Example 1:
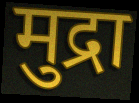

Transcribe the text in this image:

मुद्रा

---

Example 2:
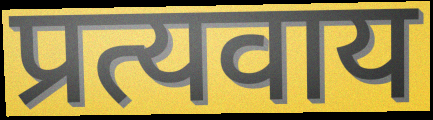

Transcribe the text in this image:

प्रत्यवाय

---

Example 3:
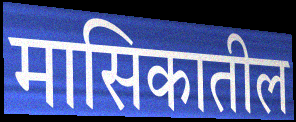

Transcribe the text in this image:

मासिकातील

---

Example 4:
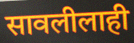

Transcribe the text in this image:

सावलीलाही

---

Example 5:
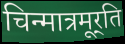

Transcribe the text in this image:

चिन्मात्रमूर्ति